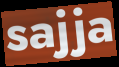
sajja